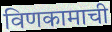
विणकामाची